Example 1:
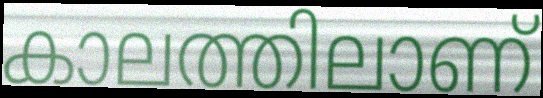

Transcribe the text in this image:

കാലത്തിലാണ്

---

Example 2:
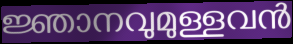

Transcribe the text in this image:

ജ്ഞാനവുമുള്ളവൻ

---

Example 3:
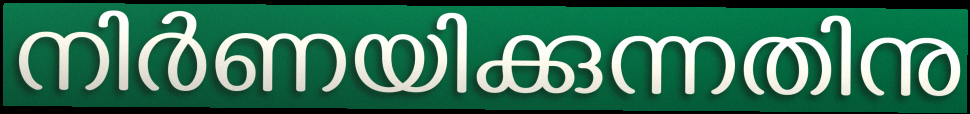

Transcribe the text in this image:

നിർണയിക്കുന്നതിനു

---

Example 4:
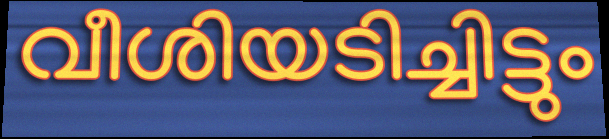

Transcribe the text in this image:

വീശിയടിച്ചിട്ടും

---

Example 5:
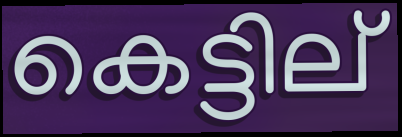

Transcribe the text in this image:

കെട്ടില്